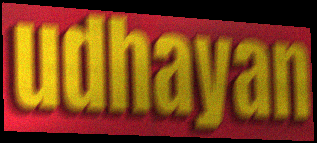
udhayan